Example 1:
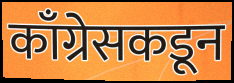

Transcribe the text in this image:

काँग्रेसकडून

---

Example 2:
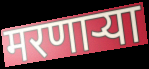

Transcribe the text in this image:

मरणार्‍या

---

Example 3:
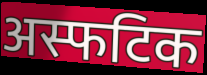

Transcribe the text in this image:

अस्फटिक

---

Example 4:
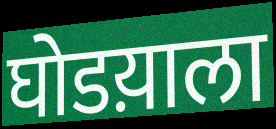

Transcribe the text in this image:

घोडय़ाला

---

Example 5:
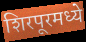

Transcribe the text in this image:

शिरपूरमध्ये